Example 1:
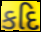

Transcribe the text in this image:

કદિ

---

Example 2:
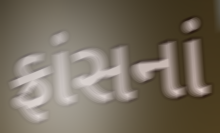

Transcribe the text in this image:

ફ્રાંસનાં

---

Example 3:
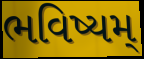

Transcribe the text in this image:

ભવિષ્યમ્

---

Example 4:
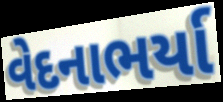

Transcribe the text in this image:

વેદનાભર્યા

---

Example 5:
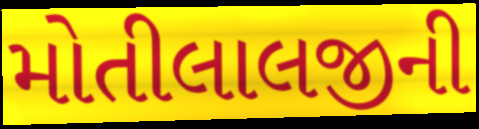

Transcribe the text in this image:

મોતીલાલજીની